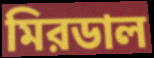
মিরডাল